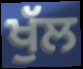
ਖੁੱਲ